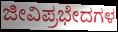
ಜೀವಿಪ್ರಭೇದಗಳ